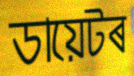
ডায়েটৰ